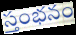
స్తంభనం